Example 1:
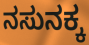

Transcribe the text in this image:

ನಸುನಕ್ಕ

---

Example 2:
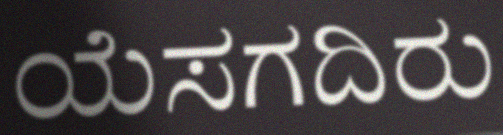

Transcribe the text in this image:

ಯೆಸಗದಿರು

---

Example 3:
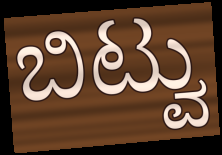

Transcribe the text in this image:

ಬಿಟ್ವು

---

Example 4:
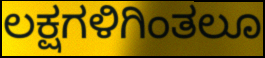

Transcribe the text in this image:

ಲಕ್ಷಗಳಿಗಿಂತಲೂ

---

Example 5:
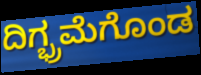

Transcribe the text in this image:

ದಿಗ್ಭ್ರಮೆಗೊಂಡ